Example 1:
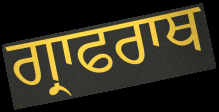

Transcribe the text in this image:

ਗ੍ਰਾਫਰਾਥ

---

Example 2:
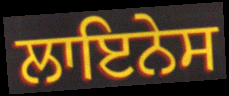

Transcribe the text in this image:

ਲਾਇਨੇਸ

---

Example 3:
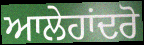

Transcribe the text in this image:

ਆਲੇਹਾਂਦਰੋ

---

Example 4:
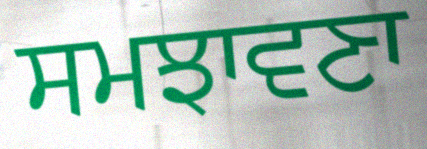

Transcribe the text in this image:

ਸਮਝਾਵਣਾ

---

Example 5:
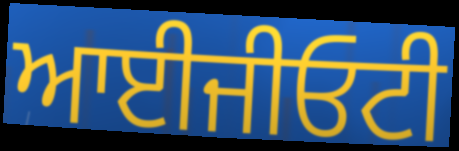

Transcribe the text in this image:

ਆਈਜੀਓਟੀ